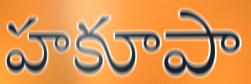
హకూపా